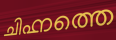
ചിഹ്നത്തെ